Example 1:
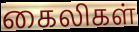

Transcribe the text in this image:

கைலிகள்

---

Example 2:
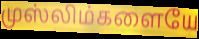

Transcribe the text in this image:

முஸ்லிம்களையே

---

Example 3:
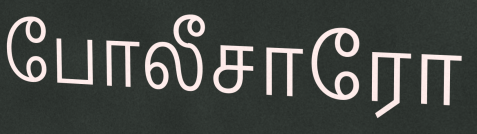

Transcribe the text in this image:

போலீசாரோ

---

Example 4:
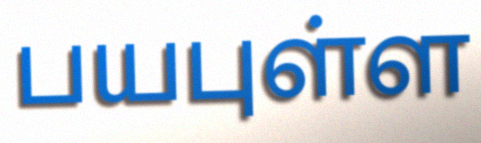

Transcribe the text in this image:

பயபுள்ள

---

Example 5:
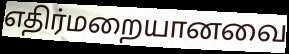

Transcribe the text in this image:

எதிர்மறையானவை